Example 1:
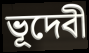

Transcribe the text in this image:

ভূদেবী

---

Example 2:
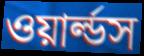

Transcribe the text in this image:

ওয়ার্ল্ডস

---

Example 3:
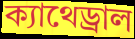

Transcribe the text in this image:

ক্যাথেড্রাল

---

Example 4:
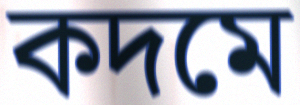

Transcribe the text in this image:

কদমে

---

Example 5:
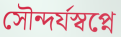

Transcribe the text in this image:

সৌন্দর্যস্বপ্নে